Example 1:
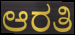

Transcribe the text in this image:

ಆರತಿ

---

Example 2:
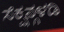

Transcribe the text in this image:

ಸೆಕ್ಷನ್ಗಳಡಿ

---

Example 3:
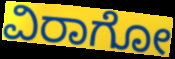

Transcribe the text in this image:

ವಿರಾಗೋ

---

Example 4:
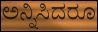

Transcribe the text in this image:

ಅನ್ನಿಸಿದರೂ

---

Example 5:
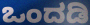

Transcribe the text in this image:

ಒಂದಡಿ